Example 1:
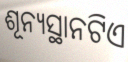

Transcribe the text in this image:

ଶୂନ୍ୟସ୍ଥାନଟିଏ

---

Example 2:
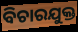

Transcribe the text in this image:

ବିଚାରଯୁକ୍ତ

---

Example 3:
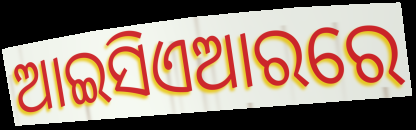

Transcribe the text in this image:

ଆଇସିଏଆରରେ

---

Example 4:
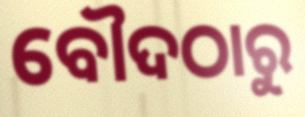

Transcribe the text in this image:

ବୌଦଠାରୁ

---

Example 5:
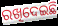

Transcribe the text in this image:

ରଖିଦେଇଛି